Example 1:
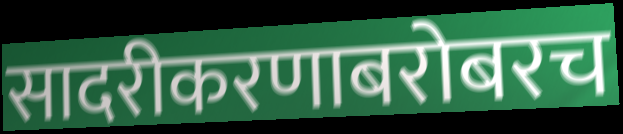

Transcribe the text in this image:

सादरीकरणाबरोबरच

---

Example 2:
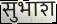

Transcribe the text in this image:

सुभाश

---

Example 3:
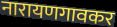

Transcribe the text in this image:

नारायणगावकर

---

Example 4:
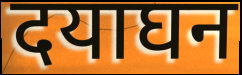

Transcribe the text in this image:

दयाघन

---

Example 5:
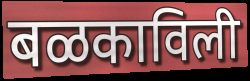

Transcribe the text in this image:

बळकाविली